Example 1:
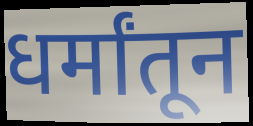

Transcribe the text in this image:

धर्मांतून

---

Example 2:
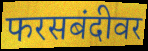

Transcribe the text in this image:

फरसबंदीवर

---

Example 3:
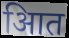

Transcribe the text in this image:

आित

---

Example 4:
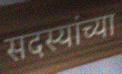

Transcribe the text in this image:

सदस्यांच्या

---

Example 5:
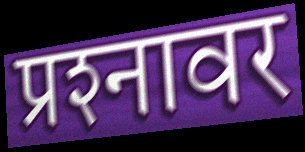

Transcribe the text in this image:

प्रश्नावर